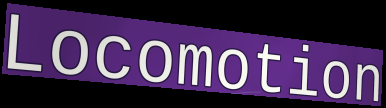
Locomotion